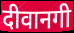
दीवानगी